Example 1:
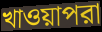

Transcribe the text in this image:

খাওয়াপরা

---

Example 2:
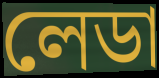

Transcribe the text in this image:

লেডা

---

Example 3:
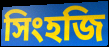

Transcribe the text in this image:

সিংহজি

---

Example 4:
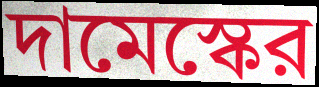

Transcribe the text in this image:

দামেস্কের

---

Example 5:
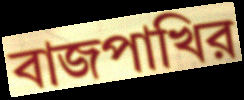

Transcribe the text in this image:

বাজপাখির